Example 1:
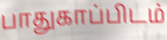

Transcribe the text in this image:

பாதுகாப்பிடம்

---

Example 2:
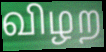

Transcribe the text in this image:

விழற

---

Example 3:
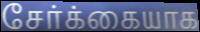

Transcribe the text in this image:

சேர்க்கையாக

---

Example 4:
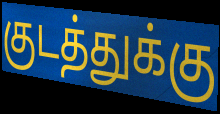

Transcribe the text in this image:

குடத்துக்கு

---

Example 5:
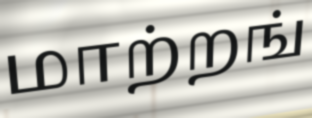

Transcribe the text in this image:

மாற்றங்